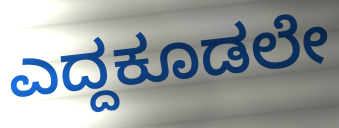
ಎದ್ದಕೂಡಲೇ